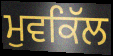
ਮੁਵਕਿੱਲ